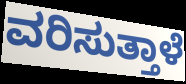
ವರಿಸುತ್ತಾಳೆ